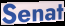
Senat